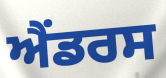
ਐਂਡਰਸ